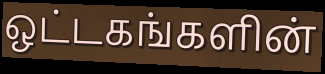
ஒட்டகங்களின்